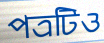
পত্রটিও